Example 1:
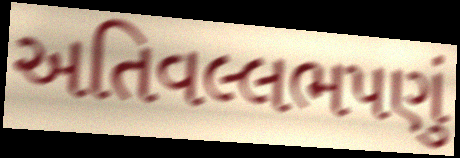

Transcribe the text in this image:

અતિવલ્લભપણું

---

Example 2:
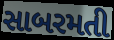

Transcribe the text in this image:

સાબરમતી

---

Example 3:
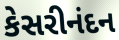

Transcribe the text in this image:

કેસરીનંદન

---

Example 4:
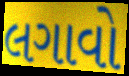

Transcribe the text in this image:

લગાવો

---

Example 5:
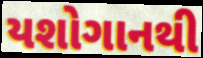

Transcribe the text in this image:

યશોગાનથી